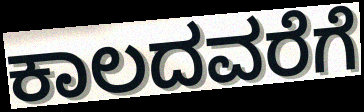
ಕಾಲದವರೆಗೆ